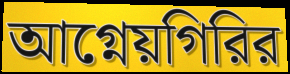
আগ্নেয়গিরির